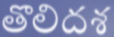
తొలిదశ